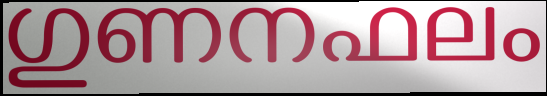
ഗുണനഫലം